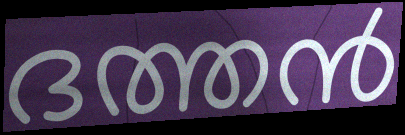
ദത്തൻ